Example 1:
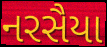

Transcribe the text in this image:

નરસૈયા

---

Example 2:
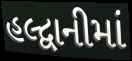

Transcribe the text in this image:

હલ્દ્વાનીમાં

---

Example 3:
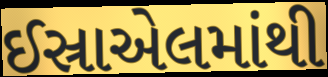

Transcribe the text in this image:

ઈસ્રાએલમાંથી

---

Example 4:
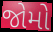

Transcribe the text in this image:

જોમો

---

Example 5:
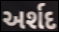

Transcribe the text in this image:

અર્શદ